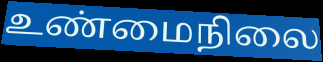
உண்மைநிலை